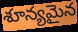
శూన్యమైన